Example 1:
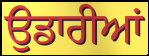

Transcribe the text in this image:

ਉਡਾਰੀਆਂ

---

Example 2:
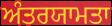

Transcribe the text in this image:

ਅੰਤਰਯਾਮਤਾ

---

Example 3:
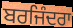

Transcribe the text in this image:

ਬਰਜਿੰਦਰਾ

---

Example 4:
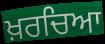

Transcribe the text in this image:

ਖ਼ਰਚਿਆ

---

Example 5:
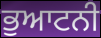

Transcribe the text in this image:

ਭੁਆਟਨੀ